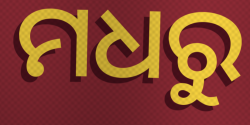
ମଧରୁ